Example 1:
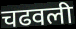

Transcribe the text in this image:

चढवली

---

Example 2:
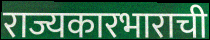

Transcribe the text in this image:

राज्यकारभाराची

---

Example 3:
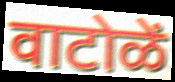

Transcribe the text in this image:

वाटोळें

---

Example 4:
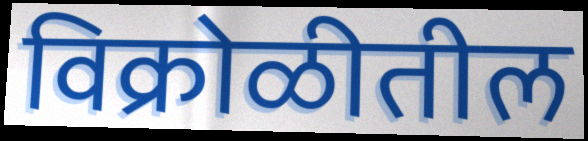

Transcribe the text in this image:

विक्रोळीतील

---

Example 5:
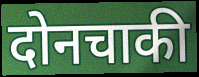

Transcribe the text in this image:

दोनचाकी